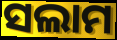
ସଲାମ